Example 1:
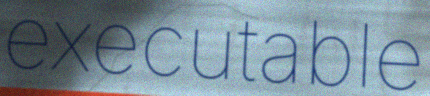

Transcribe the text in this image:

executable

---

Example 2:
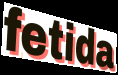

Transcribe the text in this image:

fetida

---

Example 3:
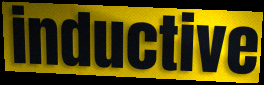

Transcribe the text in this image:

inductive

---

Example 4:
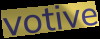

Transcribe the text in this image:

votive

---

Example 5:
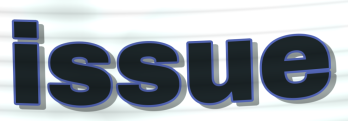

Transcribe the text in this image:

issue